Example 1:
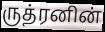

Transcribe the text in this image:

ருத்ரனின்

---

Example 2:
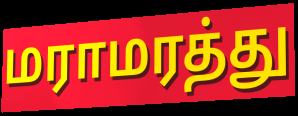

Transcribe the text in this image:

மராமரத்து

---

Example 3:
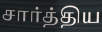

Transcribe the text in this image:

சார்த்திய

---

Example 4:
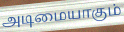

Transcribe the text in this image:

அடிமையாகும்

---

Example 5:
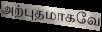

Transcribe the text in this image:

அற்புதமாகவே